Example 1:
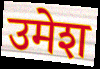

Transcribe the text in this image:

उमेश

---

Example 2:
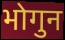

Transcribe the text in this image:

भोगुन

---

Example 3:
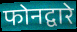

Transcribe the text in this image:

फोनद्वारे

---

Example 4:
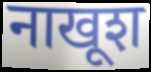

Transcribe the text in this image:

नाखूश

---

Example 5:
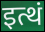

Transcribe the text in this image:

इत्थं